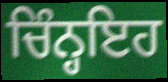
ਚਿੰਨ੍ਹਇਹ